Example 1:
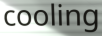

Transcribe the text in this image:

cooling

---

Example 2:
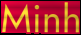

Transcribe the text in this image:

Minh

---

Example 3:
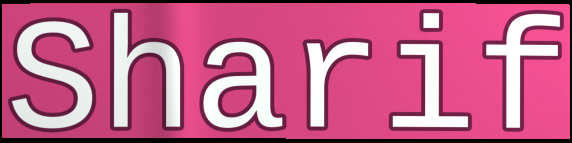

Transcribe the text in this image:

Sharif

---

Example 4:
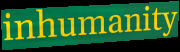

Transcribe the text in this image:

inhumanity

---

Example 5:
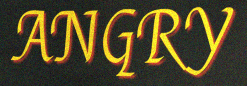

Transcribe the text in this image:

ANGRY